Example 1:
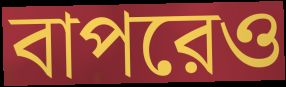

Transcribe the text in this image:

বাপরেও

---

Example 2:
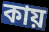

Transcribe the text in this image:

কায়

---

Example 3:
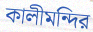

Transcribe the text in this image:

কালীমন্দির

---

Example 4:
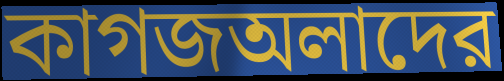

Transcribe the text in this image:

কাগজঅলাদের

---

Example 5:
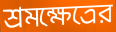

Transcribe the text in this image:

শ্রমক্ষেত্রের